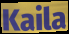
Kaila